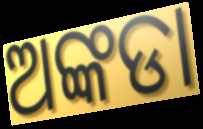
ଅଙ୍କଡା